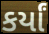
કર્યાં